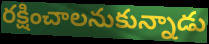
రక్షించాలనుకున్నాడు